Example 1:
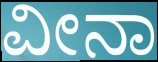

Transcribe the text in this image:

ವೀನಾ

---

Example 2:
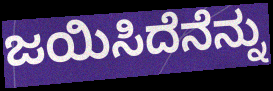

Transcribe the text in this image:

ಜಯಿಸಿದೆನೆನ್ನು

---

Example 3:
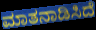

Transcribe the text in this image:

ಮಾತನಾಡಿಸಿದೆ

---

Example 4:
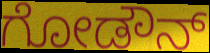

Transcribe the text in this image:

ಗೋಡೌನ್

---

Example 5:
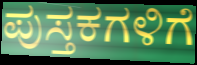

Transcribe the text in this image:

ಪುಸ್ತಕಗಳಿಗೆ